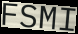
FSMI